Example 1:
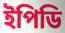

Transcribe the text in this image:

ইপিডি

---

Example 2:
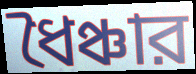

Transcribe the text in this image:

ধৈঞ্চার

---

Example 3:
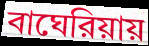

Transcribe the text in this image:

বাঘেরিয়ায়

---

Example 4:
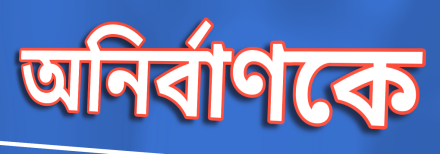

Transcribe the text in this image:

অনির্বাণকে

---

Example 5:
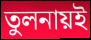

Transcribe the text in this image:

তুলনায়ই